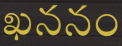
ఖననం